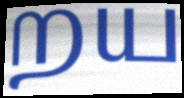
றய